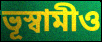
ভূস্বামীও